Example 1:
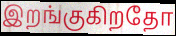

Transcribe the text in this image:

இறங்குகிறதோ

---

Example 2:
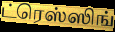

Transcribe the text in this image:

ட்ரெஸ்ஸிங்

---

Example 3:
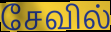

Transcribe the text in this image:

சேவில்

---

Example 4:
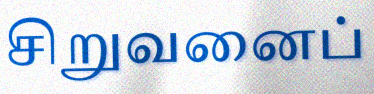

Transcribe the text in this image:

சிறுவனைப்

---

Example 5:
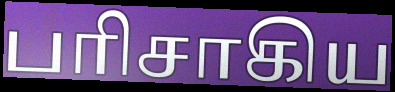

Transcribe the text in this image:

பரிசாகிய